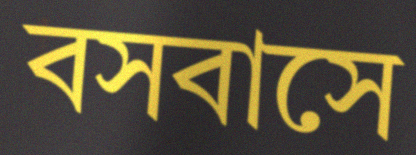
বসবাসে